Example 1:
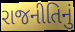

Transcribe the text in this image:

રાજનીતિનું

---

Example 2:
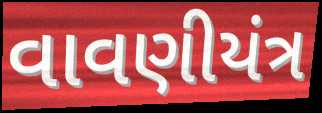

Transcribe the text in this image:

વાવણીયંત્ર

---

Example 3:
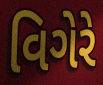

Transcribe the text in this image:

વિગેરે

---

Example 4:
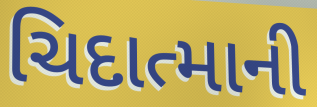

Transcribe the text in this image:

ચિદાત્માની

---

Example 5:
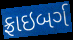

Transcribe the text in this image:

ફ્રાઇબર્ગ